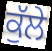
ਕੁੱਲੇ